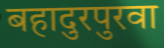
बहादुरपुरवा